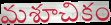
మశూచికం